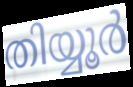
തിയ്യൂർ